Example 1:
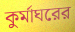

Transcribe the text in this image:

কুর্মাঘরের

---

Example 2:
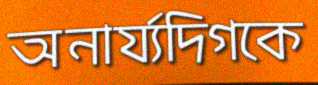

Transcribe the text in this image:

অনার্য্যদিগকে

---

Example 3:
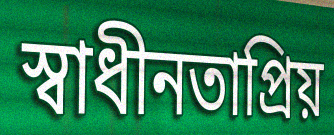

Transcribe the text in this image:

স্বাধীনতাপ্রিয়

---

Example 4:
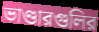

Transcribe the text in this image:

ভাণ্ডারগুলির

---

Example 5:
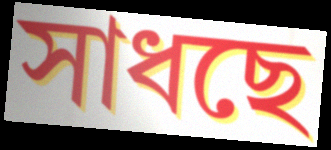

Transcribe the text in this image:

সাধছে